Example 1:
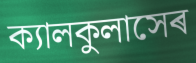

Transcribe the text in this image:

ক্যালকুলাসেৰ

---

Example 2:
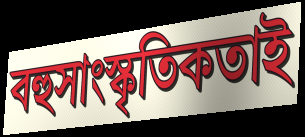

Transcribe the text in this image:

বহুসাংস্কৃতিকতাই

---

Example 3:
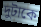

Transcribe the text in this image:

দুটাকে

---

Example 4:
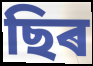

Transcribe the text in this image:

ছিৰ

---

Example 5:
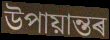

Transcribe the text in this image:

উপায়ান্তৰ